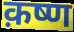
क़ष्ण